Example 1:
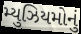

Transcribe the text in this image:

મ્યુઝિયમોનું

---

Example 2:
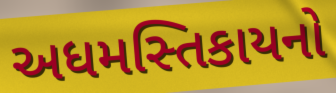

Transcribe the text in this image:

અધમસ્તિકાયનો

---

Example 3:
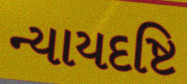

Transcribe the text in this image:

ન્યાયદષ્ટિ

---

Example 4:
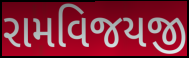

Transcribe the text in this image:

રામવિજયજી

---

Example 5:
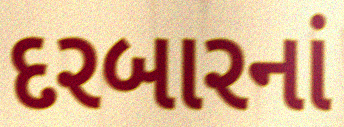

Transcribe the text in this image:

દરબારનાં